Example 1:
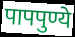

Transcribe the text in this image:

पापपुण्ये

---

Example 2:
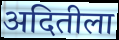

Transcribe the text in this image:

अदितीला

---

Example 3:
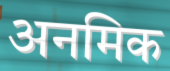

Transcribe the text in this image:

अनमिक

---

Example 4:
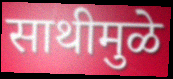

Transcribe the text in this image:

साथीमुळे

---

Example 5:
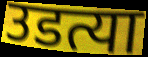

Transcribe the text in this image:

उडत्या